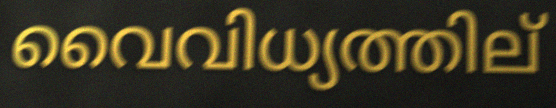
വൈവിധ്യത്തില്